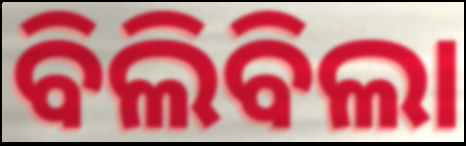
ବିଲିବିଲା